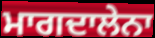
ਮਾਗਦਾਲੇਨਾ